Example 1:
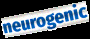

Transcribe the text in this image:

neurogenic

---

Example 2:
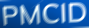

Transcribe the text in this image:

PMCID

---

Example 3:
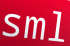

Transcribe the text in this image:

sml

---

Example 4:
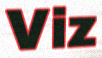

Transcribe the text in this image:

Viz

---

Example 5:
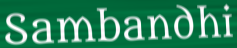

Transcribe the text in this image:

Sambandhi